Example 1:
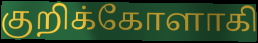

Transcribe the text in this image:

குறிக்கோளாகி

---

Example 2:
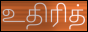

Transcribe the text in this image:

உதிரித்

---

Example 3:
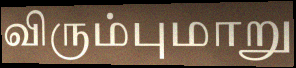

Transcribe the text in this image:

விரும்புமாறு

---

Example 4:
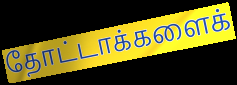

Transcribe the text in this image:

தோட்டாக்களைக்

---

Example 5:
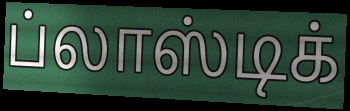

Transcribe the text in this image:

ப்லாஸ்டிக்